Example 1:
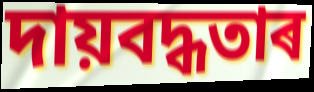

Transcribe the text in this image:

দায়বদ্ধতাৰ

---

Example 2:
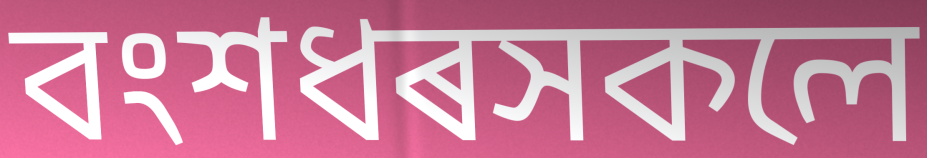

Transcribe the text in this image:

বংশধৰসকলে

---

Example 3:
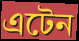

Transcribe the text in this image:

এটেন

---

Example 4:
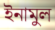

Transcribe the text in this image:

ইনামুল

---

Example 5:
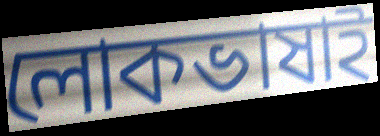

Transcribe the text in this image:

লোকভাষাই